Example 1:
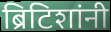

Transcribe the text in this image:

ब्रिटिशांनी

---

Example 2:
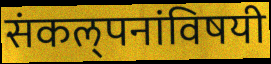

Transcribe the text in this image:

संकल्पनांविषयी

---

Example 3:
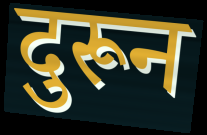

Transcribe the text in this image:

दुरून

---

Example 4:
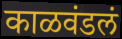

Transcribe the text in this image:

काळवंडलं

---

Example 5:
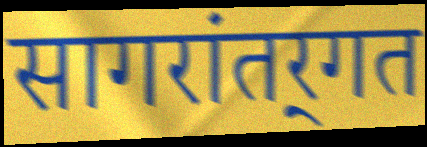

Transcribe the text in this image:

सागरांतर्गत